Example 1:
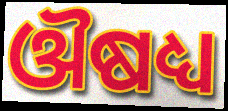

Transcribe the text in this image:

ଔଷଧ୍ୟ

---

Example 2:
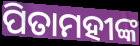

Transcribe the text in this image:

ପିତାମହୀଙ୍କ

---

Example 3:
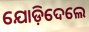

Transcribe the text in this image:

ଯୋଡ଼ିଦେଲେ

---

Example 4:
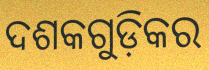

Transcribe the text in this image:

ଦଶକଗୁଡ଼ିକର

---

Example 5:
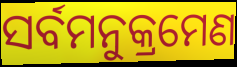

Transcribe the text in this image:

ସର୍ବମନୁକ୍ରମେଣ